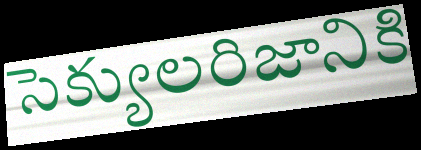
సెక్యులరిజానికి